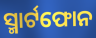
ସ୍ମାର୍ଟଫୋନ